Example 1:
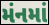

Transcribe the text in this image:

મંનમાં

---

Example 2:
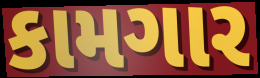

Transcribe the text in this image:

કામગાર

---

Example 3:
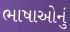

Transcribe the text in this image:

ભાષાઓનું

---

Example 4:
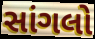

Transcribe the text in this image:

સાંગલો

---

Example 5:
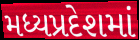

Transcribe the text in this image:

મધ્યપ્રદેશમાં